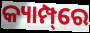
କ୍ୟାମ୍ପ୍‌ରେ